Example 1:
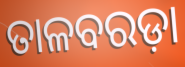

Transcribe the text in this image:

ତାଳବରଡ଼ା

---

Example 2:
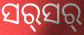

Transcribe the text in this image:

ସର୍‍ସର୍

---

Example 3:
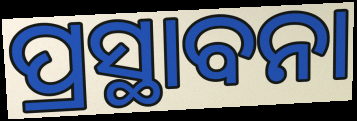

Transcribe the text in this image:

ପ୍ରସ୍ଥାବନା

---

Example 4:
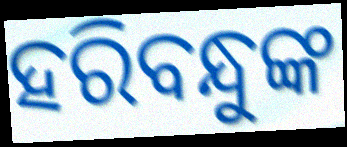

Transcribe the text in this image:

ହରିବନ୍ଧୁଙ୍କ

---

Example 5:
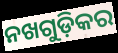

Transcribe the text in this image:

ନଖଗୁଡ଼ିକର